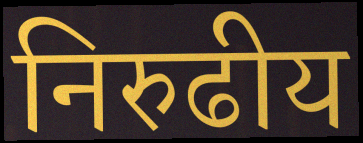
निरुढीय